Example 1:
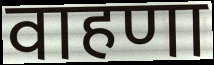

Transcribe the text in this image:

वाहणा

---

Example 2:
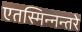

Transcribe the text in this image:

एतस्मिन्नन्तरे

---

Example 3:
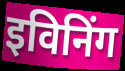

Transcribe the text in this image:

इविनिंग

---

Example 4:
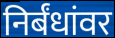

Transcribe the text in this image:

निर्बंधांवर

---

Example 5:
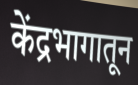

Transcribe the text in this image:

केंद्रभागातून